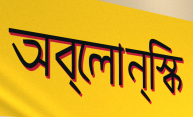
অব্‌লোন্‌স্কি